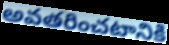
అవతరించటానికి